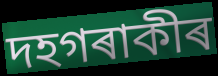
দহগৰাকীৰ